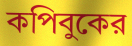
কপিবুকের